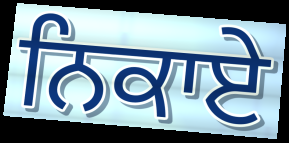
ਨਿਕਾਏ